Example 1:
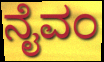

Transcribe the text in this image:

ನೈವಂ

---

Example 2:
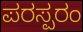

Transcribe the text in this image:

ಪರಸ್ಪರಂ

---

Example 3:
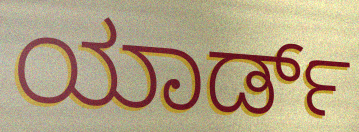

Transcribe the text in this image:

ಯಾರ್ಡ್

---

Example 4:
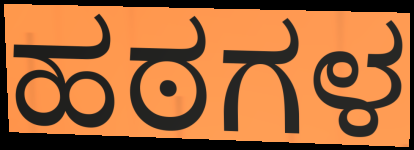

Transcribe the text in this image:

ಹಠಗಳ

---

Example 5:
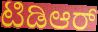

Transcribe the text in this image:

ಟಿಡಿಆರ್